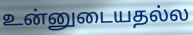
உன்னுடையதல்ல